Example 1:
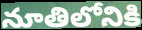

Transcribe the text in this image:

నూతిలోనికి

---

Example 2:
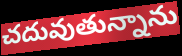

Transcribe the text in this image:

చదువుతున్నాను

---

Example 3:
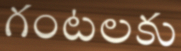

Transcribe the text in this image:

గంటలకు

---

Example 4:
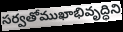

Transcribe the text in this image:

సర్వతోముఖాభివృద్ధిని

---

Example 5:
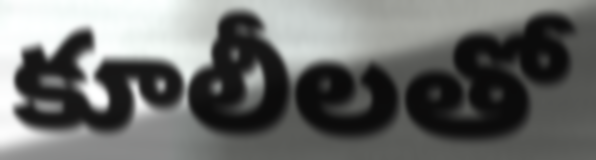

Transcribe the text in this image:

కూలీలతో